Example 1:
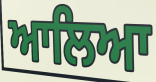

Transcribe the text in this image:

ਆਲਿਆ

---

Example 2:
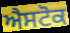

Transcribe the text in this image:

ਐਸਟੋਕ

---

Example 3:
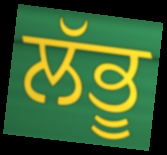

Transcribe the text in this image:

ਲੱਭੂ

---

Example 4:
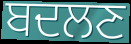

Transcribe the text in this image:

ਬਦਲਣ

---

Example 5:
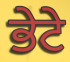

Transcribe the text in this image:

ਭੇਟੇ